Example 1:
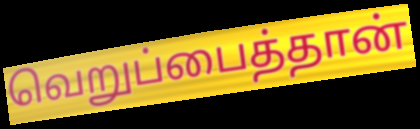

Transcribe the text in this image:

வெறுப்பைத்தான்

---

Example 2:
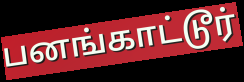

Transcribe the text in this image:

பனங்காட்டூர்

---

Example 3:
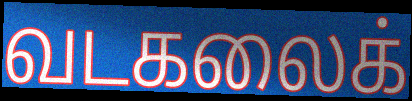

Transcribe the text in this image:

வடகலைக்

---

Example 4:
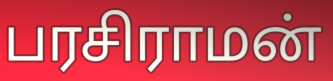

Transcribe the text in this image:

பரசிராமன்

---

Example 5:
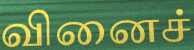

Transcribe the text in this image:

வினைச்